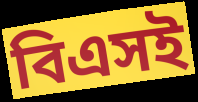
বিএসই